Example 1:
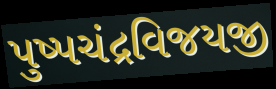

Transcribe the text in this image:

પુષ્પચંદ્રવિજયજી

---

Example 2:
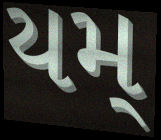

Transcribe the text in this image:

યમ્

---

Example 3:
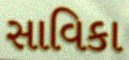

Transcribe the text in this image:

સાવિકા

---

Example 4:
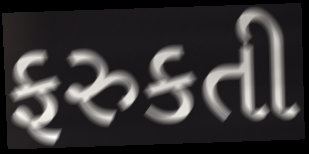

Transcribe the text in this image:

ફરુકતી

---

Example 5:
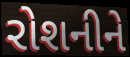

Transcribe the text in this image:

રોશનીને